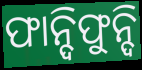
ଫାନ୍ଦିଫୁନ୍ଦି